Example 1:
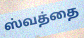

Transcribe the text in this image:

ஸ்வத்தை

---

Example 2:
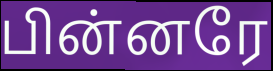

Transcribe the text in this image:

பின்னரே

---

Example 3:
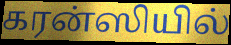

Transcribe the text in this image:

கரன்ஸியில்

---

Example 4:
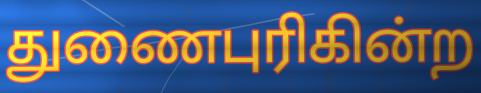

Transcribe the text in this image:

துணைபுரிகின்ற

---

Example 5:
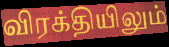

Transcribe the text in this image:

விரக்தியிலும்